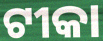
ଟୀକା